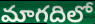
మాగదిలో